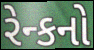
રેન્કનો